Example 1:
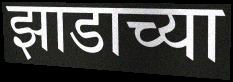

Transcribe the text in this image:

झाडाच्या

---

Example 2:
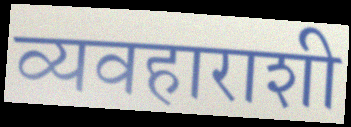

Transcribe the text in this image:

व्यवहाराशी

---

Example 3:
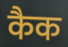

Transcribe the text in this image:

कैक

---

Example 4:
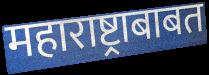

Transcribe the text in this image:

महाराष्ट्राबाबत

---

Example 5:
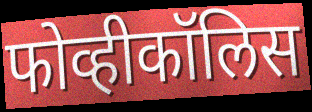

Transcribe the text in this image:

फोव्हीकॉलिस